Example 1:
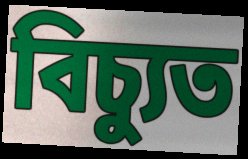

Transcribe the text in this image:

বিচ্যুত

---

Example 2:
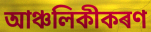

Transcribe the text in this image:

আঞ্চলিকীকৰণ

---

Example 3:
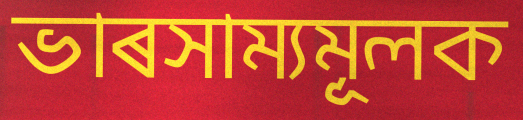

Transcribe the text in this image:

ভাৰসাম্যমূলক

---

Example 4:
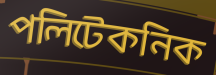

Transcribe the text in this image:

পলিটেকনিক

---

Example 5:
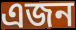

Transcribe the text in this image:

এজন